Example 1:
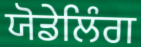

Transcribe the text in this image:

ਯੋਡੇਲਿੰਗ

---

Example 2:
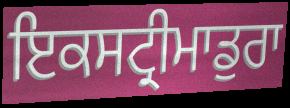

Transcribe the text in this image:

ਇਕਸਟ੍ਰੀਮਾਡੁਰਾ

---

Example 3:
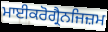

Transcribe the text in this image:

ਮਾਈਕਰੋਗ੍ਰੈਨਜਿਜ਼ਮ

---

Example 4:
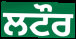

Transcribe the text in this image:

ਲਟੌਰ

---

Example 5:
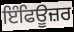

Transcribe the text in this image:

ਇੰਫਿਊਜ਼ਰ